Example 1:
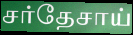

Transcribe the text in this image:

சர்தேசாய்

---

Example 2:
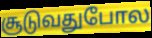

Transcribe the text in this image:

சூடுவதுபோல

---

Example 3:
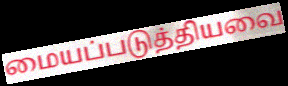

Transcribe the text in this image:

மையப்படுத்தியவை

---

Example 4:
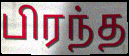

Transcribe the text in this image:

பிரந்த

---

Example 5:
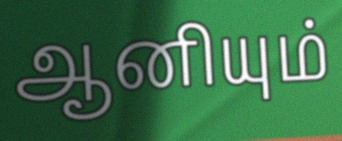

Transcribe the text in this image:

ஆனியும்